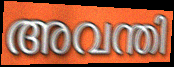
അവന്തി